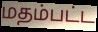
மதம்பட்ட